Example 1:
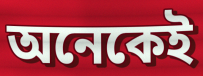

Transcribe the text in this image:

অনেকেই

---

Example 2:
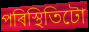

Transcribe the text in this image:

পৰিস্থিতিটো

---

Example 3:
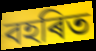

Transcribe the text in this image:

বহৰিত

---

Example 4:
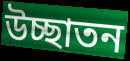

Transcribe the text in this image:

উচ্ছাতন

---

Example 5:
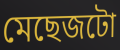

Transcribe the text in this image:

মেছেজটো